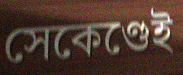
সেকেণ্ডেই